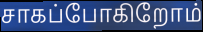
சாகப்போகிறோம்